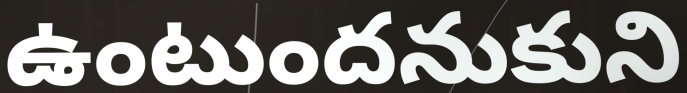
ఉంటుందనుకుని